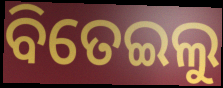
ବିତେଇଲୁ